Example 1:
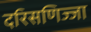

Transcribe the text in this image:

दरिसणिज्जा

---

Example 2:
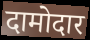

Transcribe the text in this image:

दामोदार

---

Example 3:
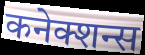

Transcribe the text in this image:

कनेक्शन्स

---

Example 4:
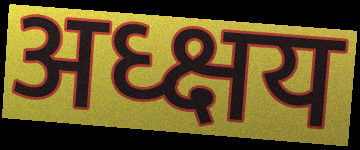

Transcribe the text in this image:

अध्क्षय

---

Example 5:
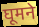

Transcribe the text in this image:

घूमने